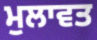
ਮੁਲਾਵਤ